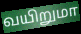
வயிறுமா